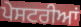
ਪੇਸਟਰੀਆਂ